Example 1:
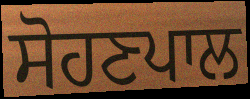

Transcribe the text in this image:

ਸੋਹਣਪਾਲ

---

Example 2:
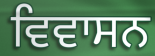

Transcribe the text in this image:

ਵਿਵਾਸਨ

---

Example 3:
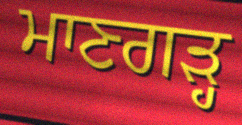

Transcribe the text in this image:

ਮਾਣਗੜ੍ਹ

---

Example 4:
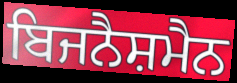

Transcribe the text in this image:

ਬਿਜਨੈਸ਼ਮੈਨ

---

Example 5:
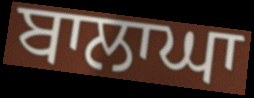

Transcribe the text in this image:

ਬਾਲਾਘਾ